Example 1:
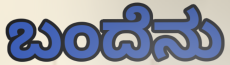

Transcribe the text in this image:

ಬಂದೆನು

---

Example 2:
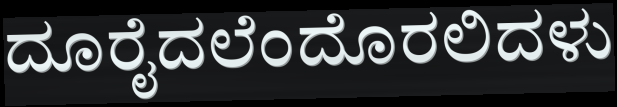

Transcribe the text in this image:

ದೂರೈದಲೆಂದೊರಲಿದಳು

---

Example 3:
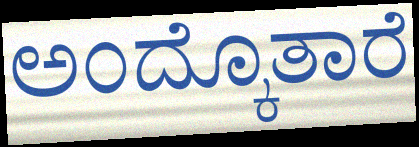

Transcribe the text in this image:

ಅಂದ್ಕೊತಾರೆ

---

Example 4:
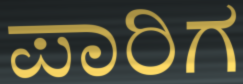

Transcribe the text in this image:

ಪಾರಿಗ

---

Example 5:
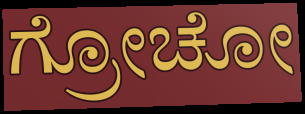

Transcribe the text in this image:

ಗ್ರೋಚೋ